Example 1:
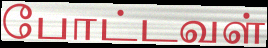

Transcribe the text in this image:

போட்டவள்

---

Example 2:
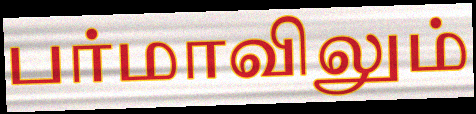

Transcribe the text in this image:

பர்மாவிலும்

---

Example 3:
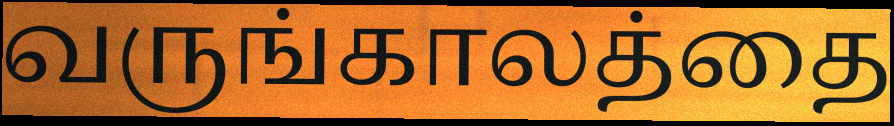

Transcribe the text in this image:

வருங்காலத்தை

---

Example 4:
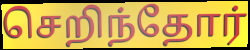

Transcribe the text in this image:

செறிந்தோர்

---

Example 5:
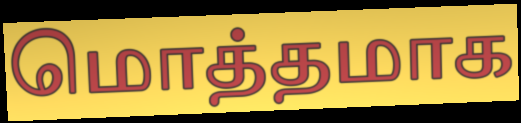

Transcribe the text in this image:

மொத்தமாக